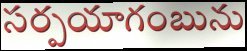
సర్పయాగంబును